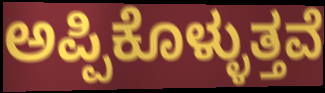
ಅಪ್ಪಿಕೊಳ್ಳುತ್ತವೆ